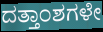
ದತ್ತಾಂಶಗಳೇ